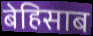
बेहिसाब